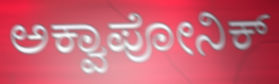
ಅಕ್ವಾಪೋನಿಕ್